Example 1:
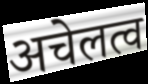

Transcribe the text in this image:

अचेलत्व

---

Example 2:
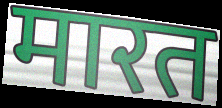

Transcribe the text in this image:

मारत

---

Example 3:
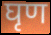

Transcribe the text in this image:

घृण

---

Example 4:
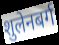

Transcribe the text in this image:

शुलेनबर्ग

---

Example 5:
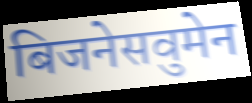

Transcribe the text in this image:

बिजनेसवुमेन